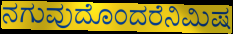
ನಗುವುದೊಂದರೆನಿಮಿಷ